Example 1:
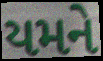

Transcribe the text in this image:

યમને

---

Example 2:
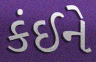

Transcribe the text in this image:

કંઈને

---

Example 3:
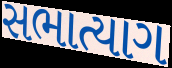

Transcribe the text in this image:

સભાત્યાગ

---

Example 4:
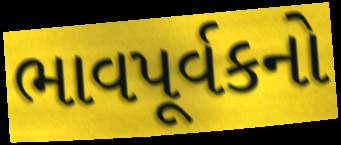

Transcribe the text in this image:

ભાવપૂર્વકનો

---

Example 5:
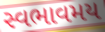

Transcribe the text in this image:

સ્વભાવમય